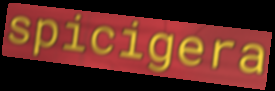
spicigera